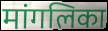
मांगलिका